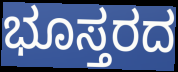
ಭೂಸ್ತರದ